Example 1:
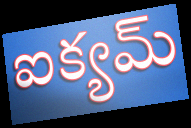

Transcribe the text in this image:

ఐక్యమ్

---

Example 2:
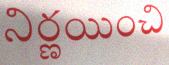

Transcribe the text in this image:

నిర్ణయించి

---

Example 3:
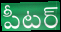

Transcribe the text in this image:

పీటర్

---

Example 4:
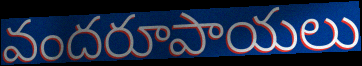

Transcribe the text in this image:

వందరూపాయలు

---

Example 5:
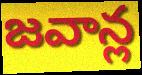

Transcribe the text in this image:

జవాన్ల